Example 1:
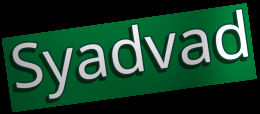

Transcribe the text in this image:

Syadvad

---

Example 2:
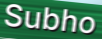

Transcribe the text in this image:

Subho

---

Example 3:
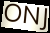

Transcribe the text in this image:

ONJ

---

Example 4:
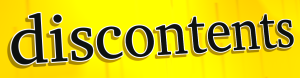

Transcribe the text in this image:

discontents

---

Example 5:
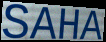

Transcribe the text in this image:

SAHA